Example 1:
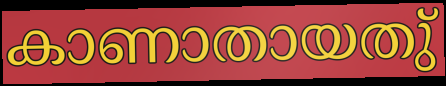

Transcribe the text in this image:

കാണാതായതു്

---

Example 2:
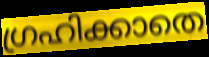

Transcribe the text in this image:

ഗ്രഹിക്കാതെ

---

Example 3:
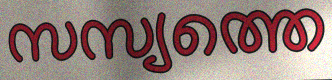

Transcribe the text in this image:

സസ്യത്തെ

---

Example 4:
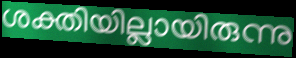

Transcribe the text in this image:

ശക്തിയില്ലായിരുന്നു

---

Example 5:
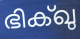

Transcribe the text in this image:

ഭിക്ഖു